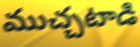
ముచ్చటాడి